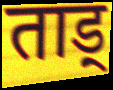
ताड्